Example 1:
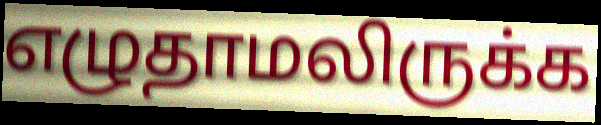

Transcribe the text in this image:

எழுதாமலிருக்க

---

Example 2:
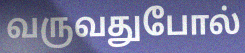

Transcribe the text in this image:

வருவதுபோல்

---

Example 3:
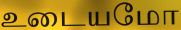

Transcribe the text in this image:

உடையமோ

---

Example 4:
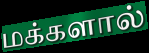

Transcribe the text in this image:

மக்களால்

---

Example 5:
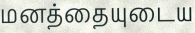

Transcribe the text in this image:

மனத்தையுடைய